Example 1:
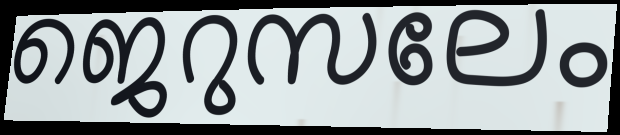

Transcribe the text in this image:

ജെറുസലേം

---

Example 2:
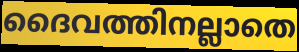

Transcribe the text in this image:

ദൈവത്തിനല്ലാതെ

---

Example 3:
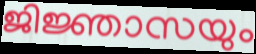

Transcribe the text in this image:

ജിജ്ഞാസയും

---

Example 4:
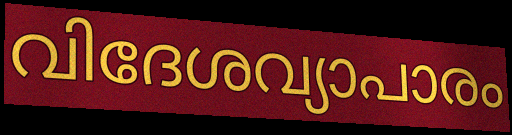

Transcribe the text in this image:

വിദേശവ്യാപാരം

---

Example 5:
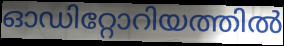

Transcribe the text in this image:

ഓഡിറ്റോറിയത്തിൽ